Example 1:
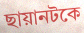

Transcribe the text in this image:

ছায়ানটকে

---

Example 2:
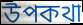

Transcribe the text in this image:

উপকথা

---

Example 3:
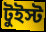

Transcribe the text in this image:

টুইস্ট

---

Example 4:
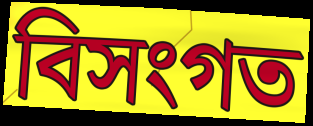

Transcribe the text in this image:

বিসংগত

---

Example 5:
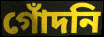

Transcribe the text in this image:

গোঁদনি